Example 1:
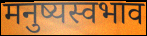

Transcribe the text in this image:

मनुष्यस्वभाव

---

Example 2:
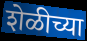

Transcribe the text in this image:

शेळीच्या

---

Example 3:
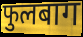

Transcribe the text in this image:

फुलबाग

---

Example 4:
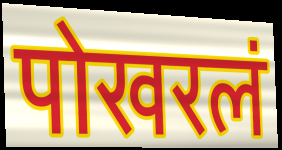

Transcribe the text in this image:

पोखरलं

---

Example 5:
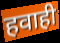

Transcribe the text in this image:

हवाही